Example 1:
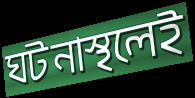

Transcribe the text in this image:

ঘটনাস্থলেই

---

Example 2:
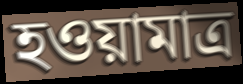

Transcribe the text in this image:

হওয়ামাত্র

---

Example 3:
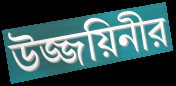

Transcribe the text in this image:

উজ্জয়িনীর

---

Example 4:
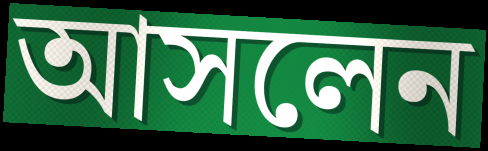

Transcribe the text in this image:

আসলেন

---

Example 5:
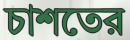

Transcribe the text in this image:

চাশতের